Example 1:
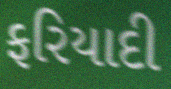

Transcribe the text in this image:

ફરિયાદી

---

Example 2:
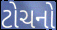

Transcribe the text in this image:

ટોચનો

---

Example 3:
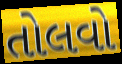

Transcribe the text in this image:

તોલવો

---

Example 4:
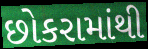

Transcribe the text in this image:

છોકરામાંથી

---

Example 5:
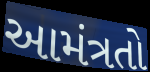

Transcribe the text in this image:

આમંત્રતો